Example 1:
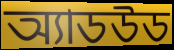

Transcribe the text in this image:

অ্যাডউড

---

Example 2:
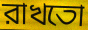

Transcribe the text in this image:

রাখতো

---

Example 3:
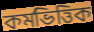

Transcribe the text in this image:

কর্মভিত্তিক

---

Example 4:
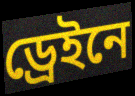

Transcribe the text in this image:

ড্রেইনে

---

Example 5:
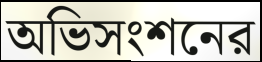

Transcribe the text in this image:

অভিসংশনের